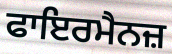
ਫਾਇਰਮੈਨਜ਼